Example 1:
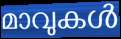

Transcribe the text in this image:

മാവുകൾ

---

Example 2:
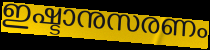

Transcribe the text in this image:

ഇഷ്ടാനുസരണം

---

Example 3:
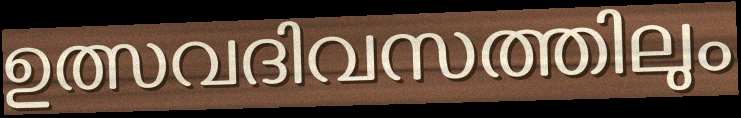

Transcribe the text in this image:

ഉത്സവദിവസത്തിലും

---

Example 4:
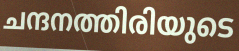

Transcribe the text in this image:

ചന്ദനത്തിരിയുടെ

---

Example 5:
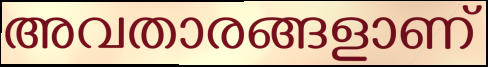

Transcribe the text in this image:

അവതാരങ്ങളാണ്